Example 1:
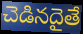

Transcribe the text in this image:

చెడినదైతే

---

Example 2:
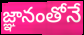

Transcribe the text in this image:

జ్ఞానంతోనే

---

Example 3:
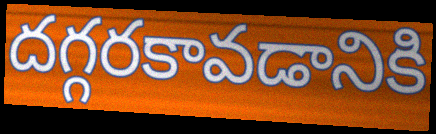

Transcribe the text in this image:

దగ్గరకావడానికి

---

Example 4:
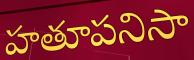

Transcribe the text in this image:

హతూపనిసా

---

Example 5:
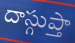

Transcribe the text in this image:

దాస్గుప్తా